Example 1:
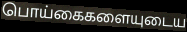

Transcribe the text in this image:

பொய்கைகளையுடைய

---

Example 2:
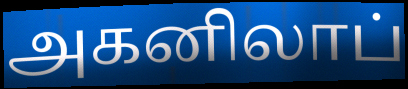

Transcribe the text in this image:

அகனிலாப்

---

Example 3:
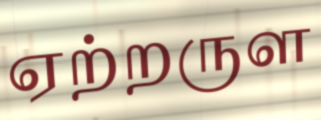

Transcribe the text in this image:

ஏற்றருள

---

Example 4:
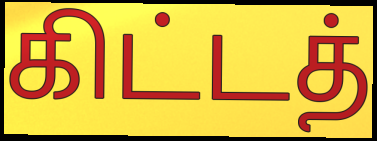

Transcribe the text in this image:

கிட்டத்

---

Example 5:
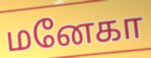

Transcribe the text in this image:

மனேகா